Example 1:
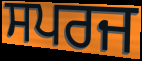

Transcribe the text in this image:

ਸਪਰਜ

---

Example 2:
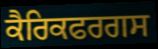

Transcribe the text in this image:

ਕੈਰਿਕਫਰਗਸ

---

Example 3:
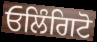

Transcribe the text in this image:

ਓਲਿੰਗਿਟੋ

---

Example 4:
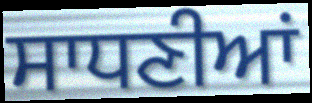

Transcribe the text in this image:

ਸਾਧਣੀਆਂ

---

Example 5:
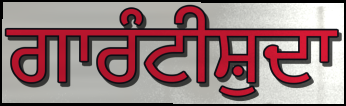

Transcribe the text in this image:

ਗਾਰੰਟੀਸ਼ੁਦਾ